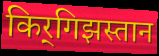
किर्गिझस्तान